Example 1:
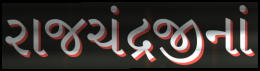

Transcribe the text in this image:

રાજચંદ્રજીનાં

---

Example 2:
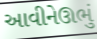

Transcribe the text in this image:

આવીનેઊભું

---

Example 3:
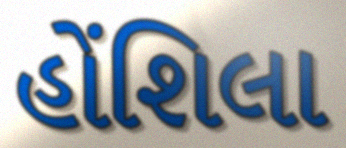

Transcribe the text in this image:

હોંશિલા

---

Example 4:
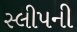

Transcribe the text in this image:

સ્લીપની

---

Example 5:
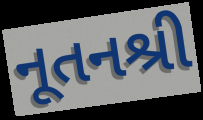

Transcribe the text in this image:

નૂતનશ્રી